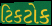
ટિકટોક